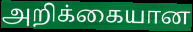
அறிக்கையான